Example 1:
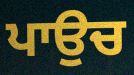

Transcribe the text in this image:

ਪਾਉਚ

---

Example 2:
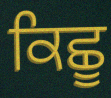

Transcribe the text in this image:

ਕਿਛੂ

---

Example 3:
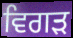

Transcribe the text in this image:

ਵਿਗੜ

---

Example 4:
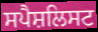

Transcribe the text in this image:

ਸਪੈਸ਼ਲਿਸਟ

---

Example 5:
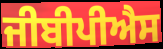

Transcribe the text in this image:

ਜੀਬੀਪੀਐਸ